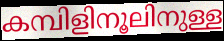
കമ്പിളിനൂലിനുള്ള